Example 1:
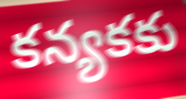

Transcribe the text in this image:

కన్యకకు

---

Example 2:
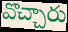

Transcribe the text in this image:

వొచ్చారు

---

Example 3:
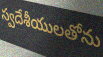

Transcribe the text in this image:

స్వదేశీయులతోను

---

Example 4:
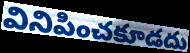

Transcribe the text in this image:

వినిపించకూడదు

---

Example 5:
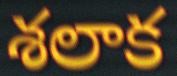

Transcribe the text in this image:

శలాక